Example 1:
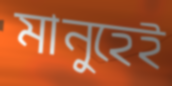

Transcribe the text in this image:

মানুহেই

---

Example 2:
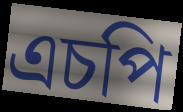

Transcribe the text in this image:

এচপি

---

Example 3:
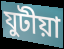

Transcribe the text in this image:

যুটীয়া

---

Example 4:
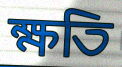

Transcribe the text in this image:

ক্ষতি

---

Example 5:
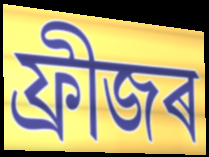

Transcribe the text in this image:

ফ্ৰীজৰ